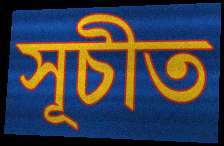
সূচীত